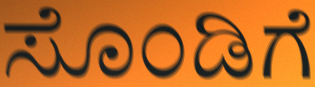
ಸೊಂಡಿಗೆ